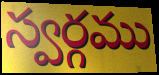
స్వర్గము